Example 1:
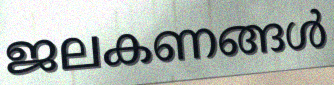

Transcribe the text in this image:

ജലകണങ്ങൾ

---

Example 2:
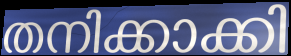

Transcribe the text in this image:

തനിക്കാക്കി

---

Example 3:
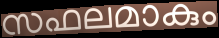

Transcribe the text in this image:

സഫലമാകും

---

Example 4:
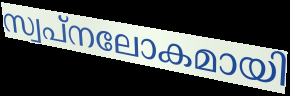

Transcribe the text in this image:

സ്വപ്നലോകമായി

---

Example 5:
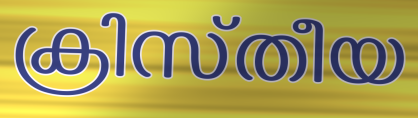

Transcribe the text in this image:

ക്രിസ്‌തീയ